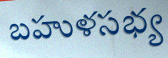
బహుళసభ్య